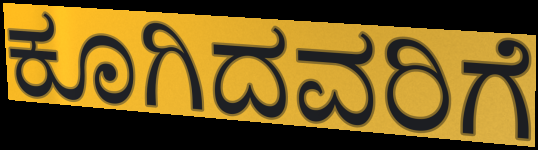
ಕೂಗಿದವರಿಗೆ